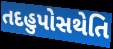
તદહુપોસથેતિ